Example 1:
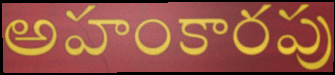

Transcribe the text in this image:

అహంకారపు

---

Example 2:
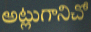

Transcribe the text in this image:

అట్లుగానిచో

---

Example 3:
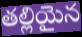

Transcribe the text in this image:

తల్లియైన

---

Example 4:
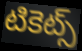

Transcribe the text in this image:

టికెట్స్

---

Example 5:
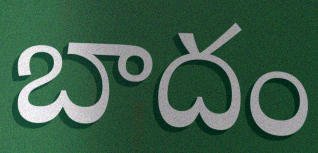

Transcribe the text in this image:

బాదం